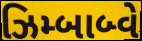
ઝિમ્બાબ્વે